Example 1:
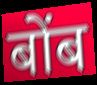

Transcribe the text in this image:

बोंब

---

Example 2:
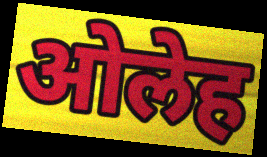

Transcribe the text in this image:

ओलेह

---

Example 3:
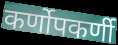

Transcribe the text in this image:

कर्णोपकर्णी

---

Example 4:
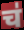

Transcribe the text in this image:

च॑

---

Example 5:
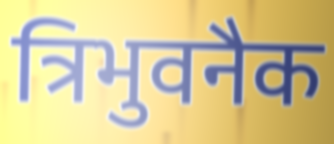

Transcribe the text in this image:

त्रिभुवनैक